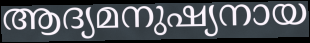
ആദ്യമനുഷ്യനായ